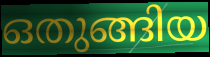
ഒതുങ്ങിയ